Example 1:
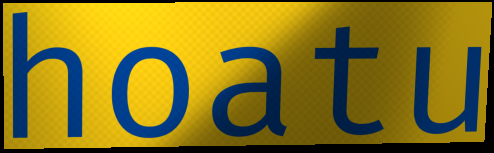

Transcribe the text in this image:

hoatu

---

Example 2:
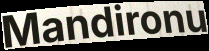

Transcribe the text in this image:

Mandironu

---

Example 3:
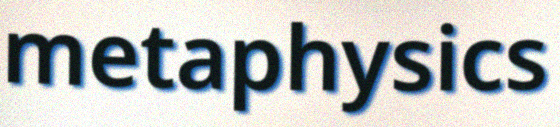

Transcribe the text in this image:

metaphysics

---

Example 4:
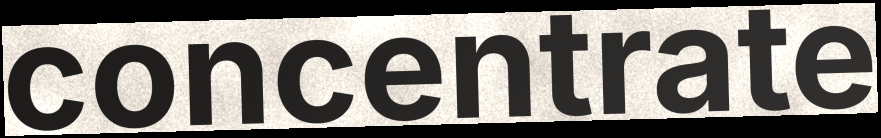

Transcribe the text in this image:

concentrate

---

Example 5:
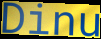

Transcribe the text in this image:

Dinu